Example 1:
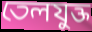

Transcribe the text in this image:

তেলযুক্ত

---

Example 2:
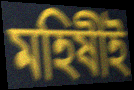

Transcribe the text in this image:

মহিষীই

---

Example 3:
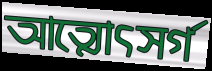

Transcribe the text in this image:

আত্মোৎসর্গ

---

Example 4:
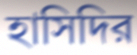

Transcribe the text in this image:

হাসিদির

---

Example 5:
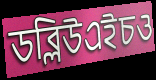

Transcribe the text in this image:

ডব্লিউএইচও